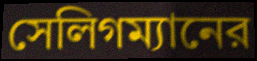
সেলিগম্যানের